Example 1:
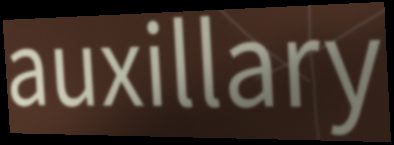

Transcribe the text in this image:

auxillary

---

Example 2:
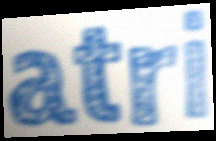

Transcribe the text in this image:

atri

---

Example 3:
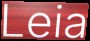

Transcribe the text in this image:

Leia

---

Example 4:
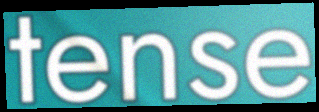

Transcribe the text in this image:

tense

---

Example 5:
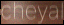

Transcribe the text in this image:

cheyal